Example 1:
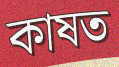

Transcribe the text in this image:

কাষত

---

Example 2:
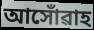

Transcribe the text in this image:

আসোঁৱাহ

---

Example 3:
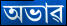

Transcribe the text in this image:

অভাৱ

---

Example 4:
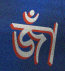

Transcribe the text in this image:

জাঁ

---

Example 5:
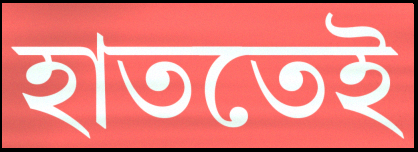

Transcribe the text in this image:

হাততেই